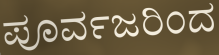
ಪೂರ್ವಜರಿಂದ